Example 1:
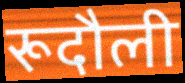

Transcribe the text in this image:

रूदौली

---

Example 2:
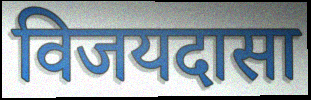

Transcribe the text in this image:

विजयदासा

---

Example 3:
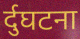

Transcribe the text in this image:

र्दुघटना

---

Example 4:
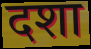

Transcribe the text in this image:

दशा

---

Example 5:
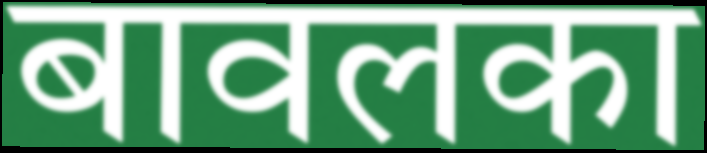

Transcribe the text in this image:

बावलका